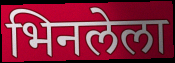
भिनलेला